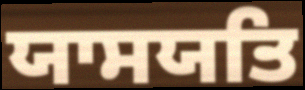
ਯਾਸਯਤਿ